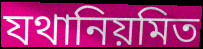
যথানিয়মিত